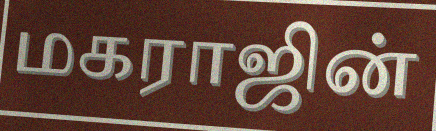
மகராஜின்